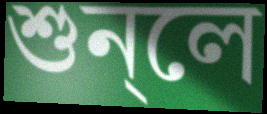
শুন্লে